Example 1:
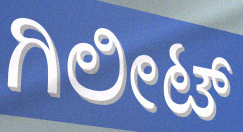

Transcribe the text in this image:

ಗಿಲೀಟ್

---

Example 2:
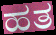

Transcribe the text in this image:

ಹತ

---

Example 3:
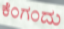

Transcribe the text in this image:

ಕೆಂಗಂದು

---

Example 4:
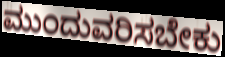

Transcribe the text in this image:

ಮುಂದುವರಿಸಬೇಕು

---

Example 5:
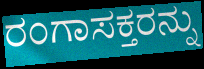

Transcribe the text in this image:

ರಂಗಾಸಕ್ತರನ್ನು